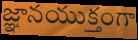
జ్ఞానయుక్తంగా